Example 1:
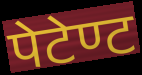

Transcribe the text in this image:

पेटेण्ट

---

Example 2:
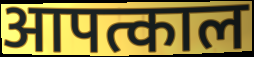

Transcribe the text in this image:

आपत्काल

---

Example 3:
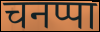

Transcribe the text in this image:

चनप्पा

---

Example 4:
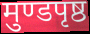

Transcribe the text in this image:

मुण्डपृष्ठ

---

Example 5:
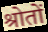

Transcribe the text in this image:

श्रोतों